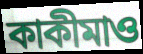
কাকীমাও